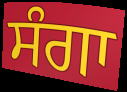
ਸੰਗਾ